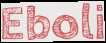
Eboli